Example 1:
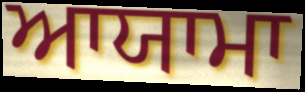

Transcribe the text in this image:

ਆਯਾਮਾ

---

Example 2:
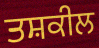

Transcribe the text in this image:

ਤਸ਼ਕੀਲ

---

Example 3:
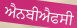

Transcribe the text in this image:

ਐਨਬੀਐਫਸੀ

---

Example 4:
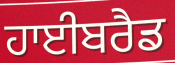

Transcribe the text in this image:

ਹਾਈਬਰੈਡ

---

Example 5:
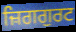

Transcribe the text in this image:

ਜ਼ਿਗਗੁਰਟ